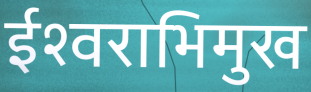
ईश्वराभिमुख